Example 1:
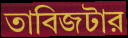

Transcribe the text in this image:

তাবিজটার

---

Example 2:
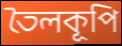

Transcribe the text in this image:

তৈলকূপি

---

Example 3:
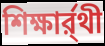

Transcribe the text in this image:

শিক্ষার্র্থী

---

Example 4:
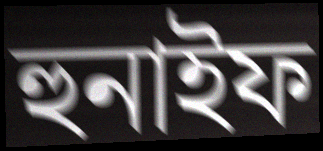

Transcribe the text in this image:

হুনাইফ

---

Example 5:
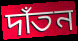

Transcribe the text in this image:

দাঁতন